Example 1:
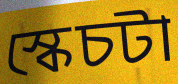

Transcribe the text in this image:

স্কেচটা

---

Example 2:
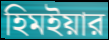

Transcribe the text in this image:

হিমইয়ার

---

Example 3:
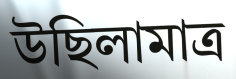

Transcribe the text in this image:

উছিলামাত্র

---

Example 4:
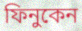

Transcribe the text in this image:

ফিনুকেন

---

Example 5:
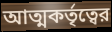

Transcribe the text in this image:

আত্মকর্তৃত্বের